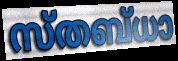
സ്തബ്ധാ